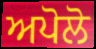
ਅਪੋਲੋ